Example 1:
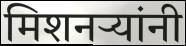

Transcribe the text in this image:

मिशनर्‍यांनी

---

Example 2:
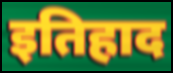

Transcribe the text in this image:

इतिहाद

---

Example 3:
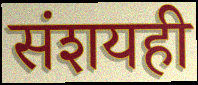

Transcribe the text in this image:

संशयही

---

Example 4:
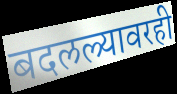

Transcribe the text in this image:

बदलल्यावरही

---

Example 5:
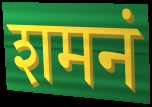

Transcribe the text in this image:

शमनं